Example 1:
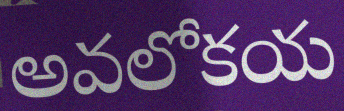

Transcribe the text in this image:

అవలోకయ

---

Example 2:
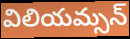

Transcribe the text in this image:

విలియమ్సన్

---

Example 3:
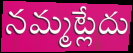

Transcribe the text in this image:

నమ్మట్లేదు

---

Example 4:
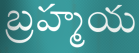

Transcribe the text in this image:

బ్రహ్మయ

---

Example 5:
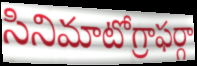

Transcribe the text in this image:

సినిమాటోగ్రాఫర్గా